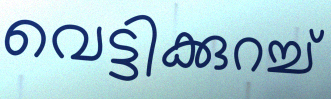
വെട്ടിക്കുറച്ച്